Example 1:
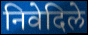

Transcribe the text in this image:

निवेदिले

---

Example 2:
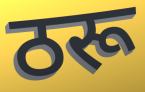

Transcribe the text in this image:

ठरू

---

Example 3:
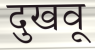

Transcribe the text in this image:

दुखवू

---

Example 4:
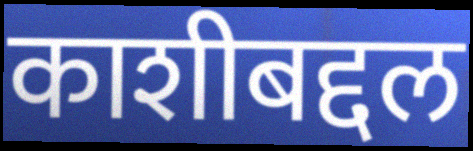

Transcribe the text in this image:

काशीबद्दल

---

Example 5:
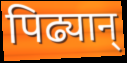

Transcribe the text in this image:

पिढ्यान्